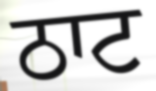
ਠਾਟ